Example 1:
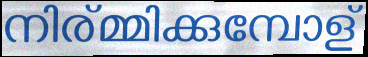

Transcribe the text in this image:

നിര്മ്മിക്കുമ്പോള്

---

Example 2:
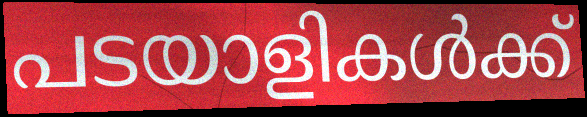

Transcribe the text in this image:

പടയാളികൾക്ക്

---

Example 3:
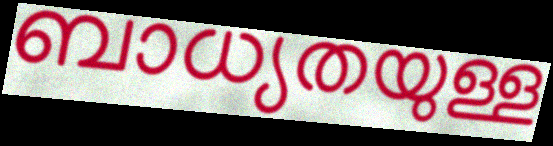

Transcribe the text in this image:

ബാധ്യതയുള്ള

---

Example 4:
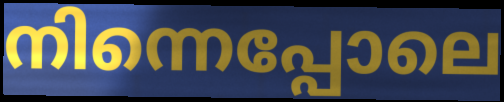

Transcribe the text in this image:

നിന്നെപ്പോലെ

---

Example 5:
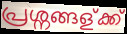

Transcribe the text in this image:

പ്രശ്നങ്ങള്ക്ക്